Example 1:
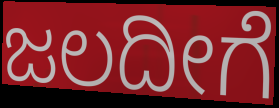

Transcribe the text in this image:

ಜಲದೀಗೆ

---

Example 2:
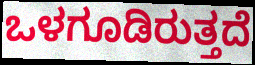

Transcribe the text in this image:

ಒಳಗೂಡಿರುತ್ತದೆ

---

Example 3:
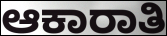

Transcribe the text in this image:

ಆಕಾರಾತಿ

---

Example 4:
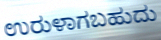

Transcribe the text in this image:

ಉರುಳಾಗಬಹುದು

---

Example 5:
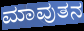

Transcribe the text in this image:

ಮಾವುತನ